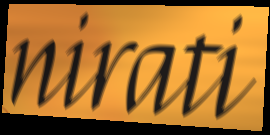
nirati